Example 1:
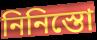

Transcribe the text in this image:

নিনিস্তো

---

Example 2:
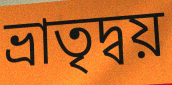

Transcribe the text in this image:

ভ্রাতৃদ্বয়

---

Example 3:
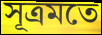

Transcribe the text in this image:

সূত্রমতে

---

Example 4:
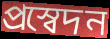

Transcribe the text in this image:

প্রস্বেদন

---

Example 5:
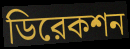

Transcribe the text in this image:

ডিরেকশন